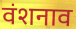
वंशनाव